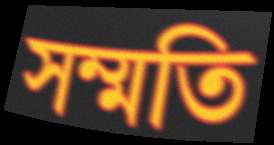
সম্মতি